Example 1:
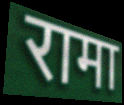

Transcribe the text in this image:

रामा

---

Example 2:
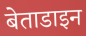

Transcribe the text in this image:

बेताडाइन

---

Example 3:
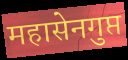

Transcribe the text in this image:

महासेनगुप्त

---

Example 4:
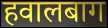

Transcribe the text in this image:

हवालबाग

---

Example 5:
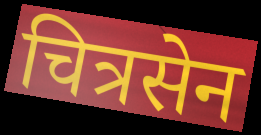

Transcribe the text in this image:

चित्रसेन